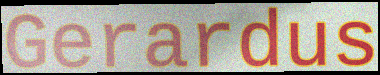
Gerardus